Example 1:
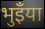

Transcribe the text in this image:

भुइँया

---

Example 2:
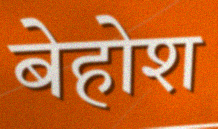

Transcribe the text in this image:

बेहोश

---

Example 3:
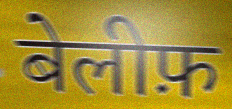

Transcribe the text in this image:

बेलीफ़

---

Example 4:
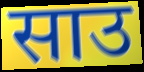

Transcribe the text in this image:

साउ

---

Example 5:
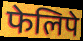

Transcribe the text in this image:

फेलिपे